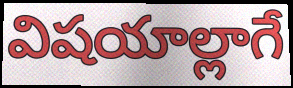
విషయాల్లాగే